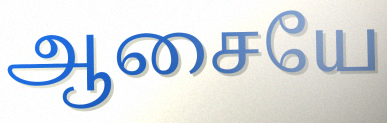
ஆசையே